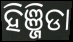
ହିଞ୍ଜିଡା